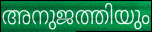
അനുജത്തിയും